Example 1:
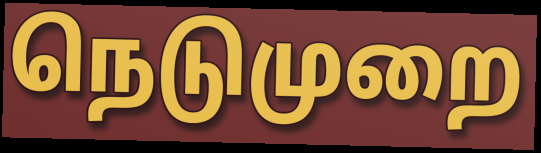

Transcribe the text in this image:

நெடுமுறை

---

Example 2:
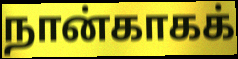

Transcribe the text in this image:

நான்காகக்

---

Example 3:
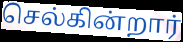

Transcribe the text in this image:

செல்கின்றார்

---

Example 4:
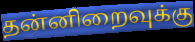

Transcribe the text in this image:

தன்னிறைவுக்கு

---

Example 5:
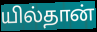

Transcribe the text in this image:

யில்தான்